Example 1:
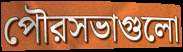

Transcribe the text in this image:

পৌরসভাগুলো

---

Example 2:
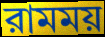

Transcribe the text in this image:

রামময়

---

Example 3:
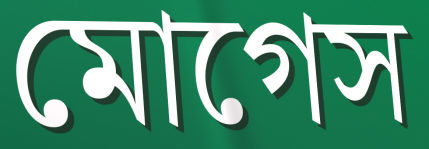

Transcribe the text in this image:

মোগেস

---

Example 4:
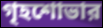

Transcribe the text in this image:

গৃহশোভার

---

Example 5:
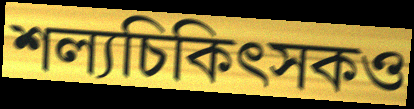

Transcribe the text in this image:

শল্যচিকিৎসকও